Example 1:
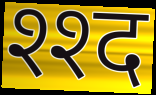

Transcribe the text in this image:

श्श्द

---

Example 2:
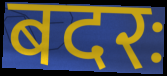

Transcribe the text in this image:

बदरः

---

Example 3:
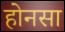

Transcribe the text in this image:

होनसा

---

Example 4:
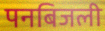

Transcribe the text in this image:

पनबिजली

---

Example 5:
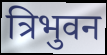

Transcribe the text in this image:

त्रिभुवन